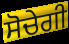
ਸੋਚੇਗੀ